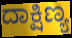
ದಾಕ್ಷಿಣ್ಯ